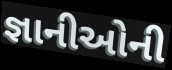
જ્ઞાનીઓની